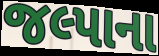
જલ્પાના